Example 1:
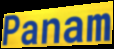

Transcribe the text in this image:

Panam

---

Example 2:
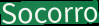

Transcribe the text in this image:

Socorro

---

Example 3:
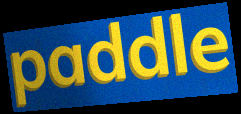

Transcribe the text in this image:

paddle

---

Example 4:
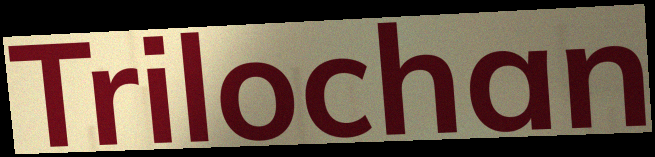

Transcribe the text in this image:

Trilochan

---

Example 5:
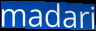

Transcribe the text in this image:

madari